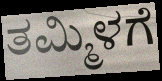
ತಮ್ಮಿಳಗೆ